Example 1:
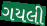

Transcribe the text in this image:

ગયલી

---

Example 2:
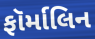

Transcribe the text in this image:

ફૉર્માલિન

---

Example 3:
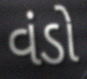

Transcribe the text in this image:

વંડો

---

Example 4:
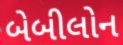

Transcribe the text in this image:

બેબીલોન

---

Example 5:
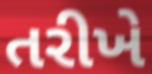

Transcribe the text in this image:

તરીખે